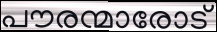
പൗരന്മാരോട്